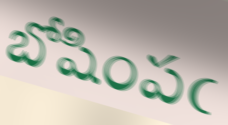
బోషింపఁ